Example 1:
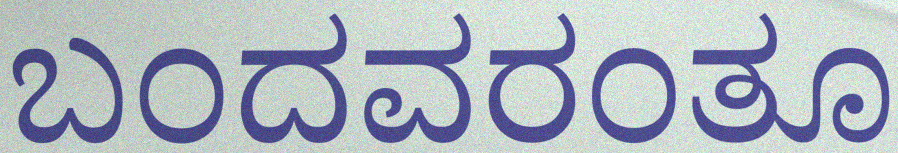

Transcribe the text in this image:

ಬಂದವರಂತೂ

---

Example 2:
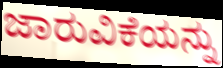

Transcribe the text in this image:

ಜಾರುವಿಕೆಯನ್ನು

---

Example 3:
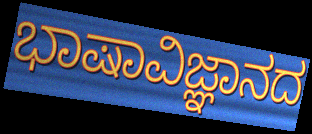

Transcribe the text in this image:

ಭಾಷಾವಿಜ್ಞಾನದ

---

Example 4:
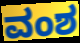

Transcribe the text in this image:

ವಂಶ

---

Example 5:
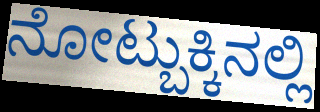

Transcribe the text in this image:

ನೋಟ್ಬುಕ್ಕಿನಲ್ಲಿ